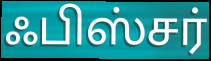
ஃபிஸ்சர்